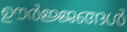
ഊർജ്ജങ്ങൾ